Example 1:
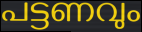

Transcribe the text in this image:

പട്ടണവും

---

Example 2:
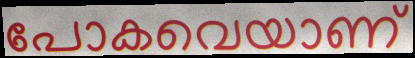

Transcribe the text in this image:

പോകവെയാണ്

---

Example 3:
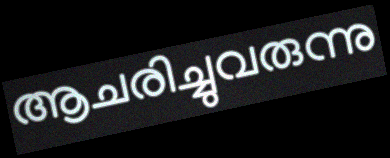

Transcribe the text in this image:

ആചരിച്ചുവരുന്നു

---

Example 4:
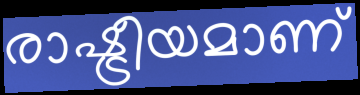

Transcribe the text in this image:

രാഷ്ട്രീയമാണ്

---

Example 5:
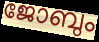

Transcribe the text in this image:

ജോബും